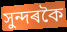
সুন্দৰকৈ